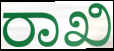
ರಾಖಿ